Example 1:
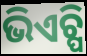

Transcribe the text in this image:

ଭିଏଚ୍ପି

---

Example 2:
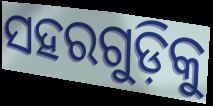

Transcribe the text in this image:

ସହରଗୁଡ଼ିକୁ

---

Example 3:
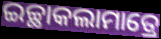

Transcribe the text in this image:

ଇଚ୍ଛାକଲାମାତ୍ରେ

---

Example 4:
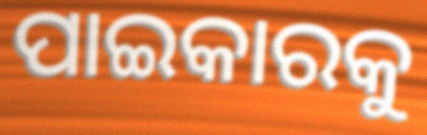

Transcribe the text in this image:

ପାଇକାରକୁ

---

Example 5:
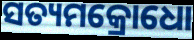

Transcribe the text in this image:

ସତ୍ୟମକ୍ରୋଧୋ